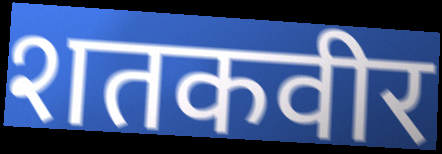
शतकवीर